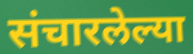
संचारलेल्या